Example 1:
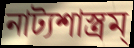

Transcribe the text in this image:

নাট্যশাস্ত্রম্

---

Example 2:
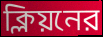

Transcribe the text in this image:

ক্লিয়নের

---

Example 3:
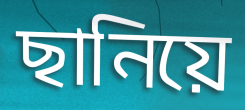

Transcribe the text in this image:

ছানিয়ে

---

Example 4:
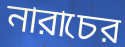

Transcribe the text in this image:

নারাচের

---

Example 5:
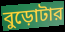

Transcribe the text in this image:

বুড়োটার